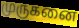
முருகனை